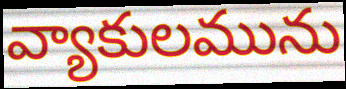
వ్యాకులమును